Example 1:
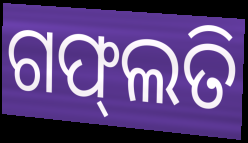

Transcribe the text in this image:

ଗଫ୍‌ଲତି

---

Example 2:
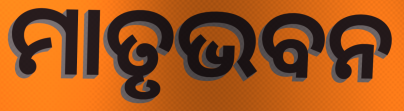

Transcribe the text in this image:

ମାତୃଭବନ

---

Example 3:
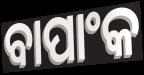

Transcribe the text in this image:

ବାପାଂକ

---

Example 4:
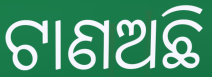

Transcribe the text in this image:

ଟାଣଅଛି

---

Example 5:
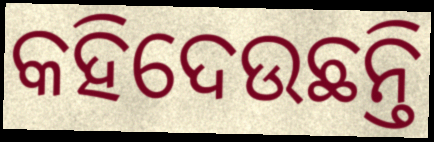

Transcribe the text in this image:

କହିଦେଉଛନ୍ତି